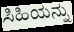
ಸಿಹಿಯನ್ನು